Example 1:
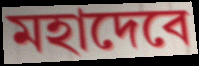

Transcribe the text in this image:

মহাদেবে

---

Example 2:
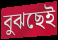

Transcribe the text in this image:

বুঝছেই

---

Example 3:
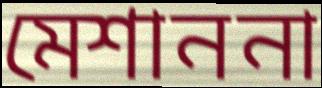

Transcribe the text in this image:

মেশাননা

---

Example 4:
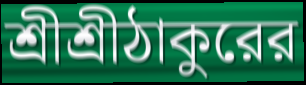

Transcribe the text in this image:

শ্রীশ্রীঠাকুরের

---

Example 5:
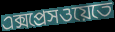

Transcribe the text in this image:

এক্সপ্রেসওয়েতে